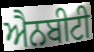
ਐਨਬੀਟੀ